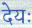
देयः